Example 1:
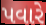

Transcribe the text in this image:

પવારે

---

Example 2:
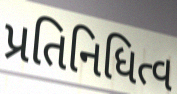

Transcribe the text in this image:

પ્રતિનિધિત્વ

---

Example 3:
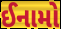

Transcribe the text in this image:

ઈનામો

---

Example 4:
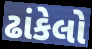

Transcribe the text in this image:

ઢાંકેલો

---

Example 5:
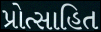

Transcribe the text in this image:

પ્રોત્સાહિત